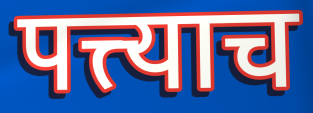
पत्त्याच